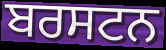
ਬਰਸਟਨ